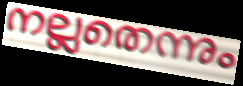
നല്ലതെന്നും